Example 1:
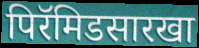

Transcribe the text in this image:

पिरॅमिडसारखा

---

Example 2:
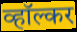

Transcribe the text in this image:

व्हॉल्कर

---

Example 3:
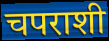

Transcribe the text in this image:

चपराशी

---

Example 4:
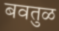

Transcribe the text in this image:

बवतुळ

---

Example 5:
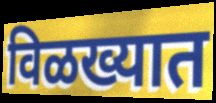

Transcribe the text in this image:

विळख्यात